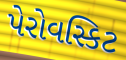
પેરોવસ્કિટ